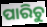
ପାରିଚୁ